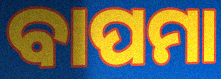
ବାପମା